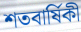
শতবার্ষিকী